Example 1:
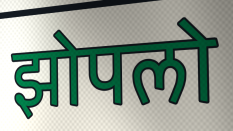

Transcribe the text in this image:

झोपलो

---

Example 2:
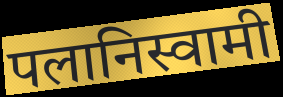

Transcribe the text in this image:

पलानिस्वामी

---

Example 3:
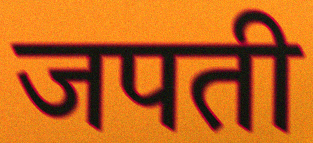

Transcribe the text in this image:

जपती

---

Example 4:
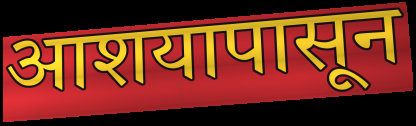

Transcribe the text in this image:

आशयापासून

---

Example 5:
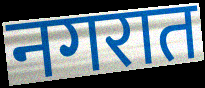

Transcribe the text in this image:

नगरात